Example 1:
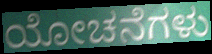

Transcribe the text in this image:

ಯೋಚನೆಗಳು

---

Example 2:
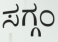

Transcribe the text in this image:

ಸಗ್ಗಂ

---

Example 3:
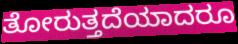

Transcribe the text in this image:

ತೋರುತ್ತದೆಯಾದರೂ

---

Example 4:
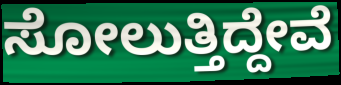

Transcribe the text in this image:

ಸೋಲುತ್ತಿದ್ದೇವೆ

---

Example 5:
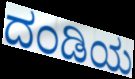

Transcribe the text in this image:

ದಂಡಿಯ